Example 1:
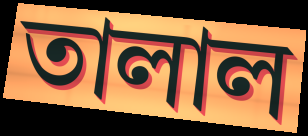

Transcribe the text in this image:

তালাল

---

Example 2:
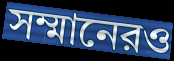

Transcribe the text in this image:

সম্মানেরও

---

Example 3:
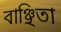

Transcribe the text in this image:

বাঞ্ছিতা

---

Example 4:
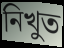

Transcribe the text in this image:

নিখুত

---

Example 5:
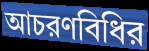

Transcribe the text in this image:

আচরণবিধির